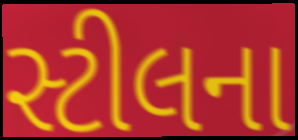
સ્ટીલના